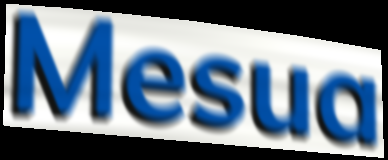
Mesua